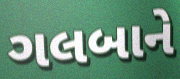
ગલબાને